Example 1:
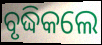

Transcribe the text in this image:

ବୃଦ୍ଧିକଲେ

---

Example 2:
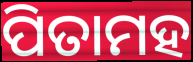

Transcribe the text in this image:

ପିତାମହ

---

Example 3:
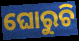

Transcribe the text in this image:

ଘୋରୁଚି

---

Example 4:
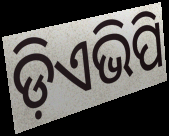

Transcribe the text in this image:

ଡ଼ିଏଭିପି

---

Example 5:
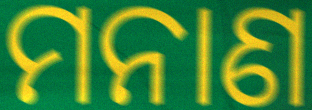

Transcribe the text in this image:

ମନାଣ